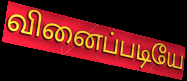
வினைப்படியே